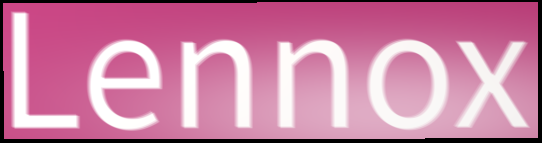
Lennox